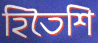
হিতৈশি